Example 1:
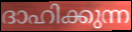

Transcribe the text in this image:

ദാഹിക്കുന്ന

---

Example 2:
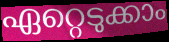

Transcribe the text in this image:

ഏറ്റെടുക്കാം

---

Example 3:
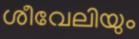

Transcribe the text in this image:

ശീവേലിയും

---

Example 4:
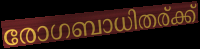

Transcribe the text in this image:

രോഗബാധിതര്ക്ക്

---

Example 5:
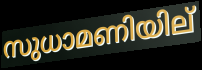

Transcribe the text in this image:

സുധാമണിയില്